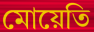
মোয়েতি